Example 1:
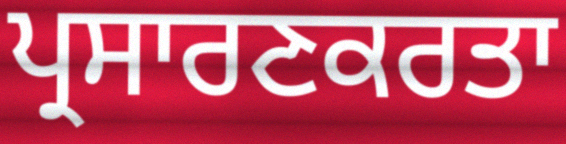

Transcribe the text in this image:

ਪ੍ਰਸਾਰਣਕਰਤਾ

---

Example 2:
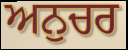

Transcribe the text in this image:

ਅਨੁਚਰ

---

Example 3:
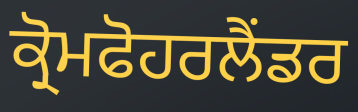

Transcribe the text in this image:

ਕ੍ਰੋਮਫੋਹਰਲੈਂਡਰ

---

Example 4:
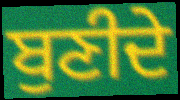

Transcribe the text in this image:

ਬੁਣੀਦੇ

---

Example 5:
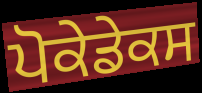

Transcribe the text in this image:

ਪੋਕੇਡੇਕਸ